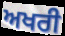
ਅਖਰੀ